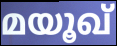
മയൂഖ്